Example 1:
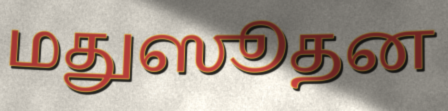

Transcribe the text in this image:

மதுஸூதன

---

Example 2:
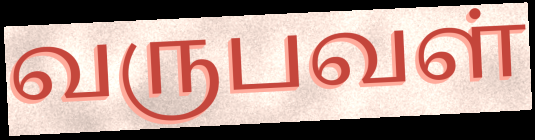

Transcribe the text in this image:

வருபவள்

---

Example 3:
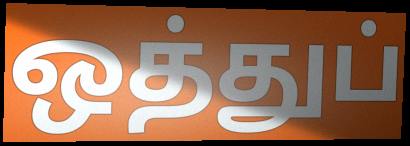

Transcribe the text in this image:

ஒத்துப்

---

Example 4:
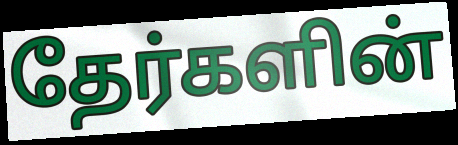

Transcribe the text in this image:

தேர்களின்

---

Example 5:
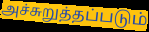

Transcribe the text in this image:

அச்சுறுத்தப்படும்